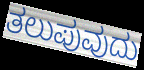
ತಲುಪುವುದು